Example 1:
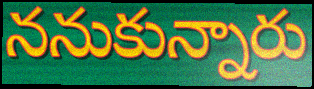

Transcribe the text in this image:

ననుకున్నారు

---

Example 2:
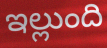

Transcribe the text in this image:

ఇల్లుంది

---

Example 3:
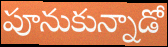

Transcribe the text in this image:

పూనుకున్నాడో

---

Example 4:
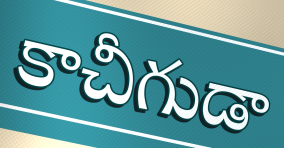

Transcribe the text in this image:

కాచీగుడా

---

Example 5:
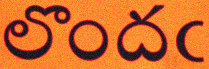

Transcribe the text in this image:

లొందఁ